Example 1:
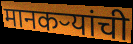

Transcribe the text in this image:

मानकऱ्यांची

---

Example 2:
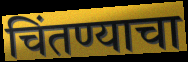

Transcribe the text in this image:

चिंतण्याचा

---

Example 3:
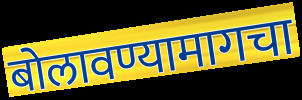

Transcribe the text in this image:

बोलावण्यामागचा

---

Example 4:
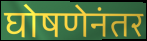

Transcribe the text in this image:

घोषणेनंतर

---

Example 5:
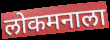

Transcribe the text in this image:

लोकमनाला